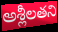
అశ్లీలతని